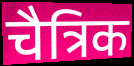
चैत्रिक